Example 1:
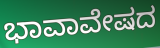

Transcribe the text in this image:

ಭಾವಾವೇಷದ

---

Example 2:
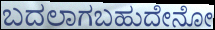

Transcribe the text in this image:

ಬದಲಾಗಬಹುದೇನೋ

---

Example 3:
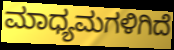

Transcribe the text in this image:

ಮಾಧ್ಯಮಗಳಿಗಿದೆ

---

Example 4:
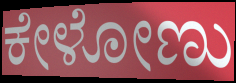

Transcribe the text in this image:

ಕೇಳೋಣು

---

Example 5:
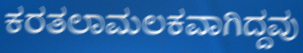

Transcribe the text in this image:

ಕರತಲಾಮಲಕವಾಗಿದ್ದವು